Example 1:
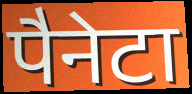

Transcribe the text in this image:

पैनेटा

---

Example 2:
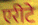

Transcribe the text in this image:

एरीटे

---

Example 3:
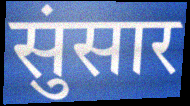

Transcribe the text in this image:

सुंसार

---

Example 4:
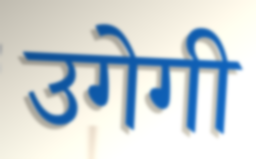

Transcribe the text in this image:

उगेगी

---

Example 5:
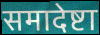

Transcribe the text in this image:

समादेष्टा